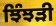
ਝਿੰਝੜੀ